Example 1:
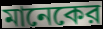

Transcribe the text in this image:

মানেকের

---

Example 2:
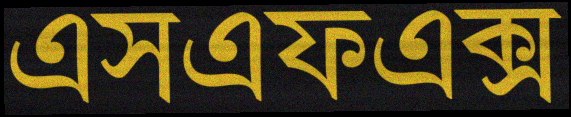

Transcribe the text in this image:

এসএফএক্স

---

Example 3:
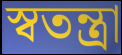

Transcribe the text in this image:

স্বতন্ত্রা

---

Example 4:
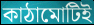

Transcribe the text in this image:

কাঠামোটিই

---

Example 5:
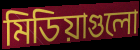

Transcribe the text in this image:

মিডিয়াগুলো